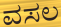
ವಸಲ